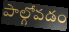
పాల్గోవడం